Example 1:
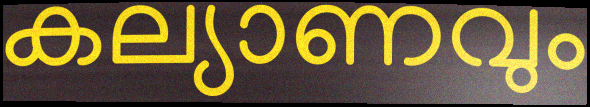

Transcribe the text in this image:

കല്യാണവും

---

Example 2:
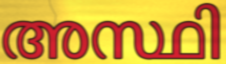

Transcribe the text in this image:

അസ്ഥി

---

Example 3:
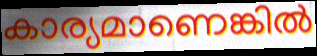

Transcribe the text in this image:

കാര്യമാണെങ്കിൽ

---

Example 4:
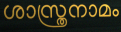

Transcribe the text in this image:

ശാസ്ത്രനാമം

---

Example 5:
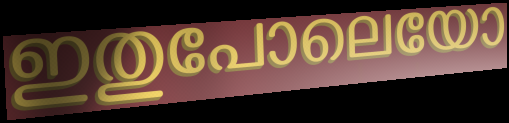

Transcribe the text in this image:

ഇതുപോലെയോ